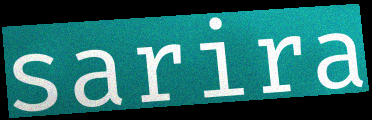
sarira